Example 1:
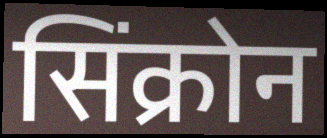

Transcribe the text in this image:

सिंक्रोन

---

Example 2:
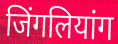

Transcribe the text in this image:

जिंगलियांग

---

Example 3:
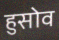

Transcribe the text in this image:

हुसोव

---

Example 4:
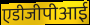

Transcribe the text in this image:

एडीजीपीआई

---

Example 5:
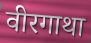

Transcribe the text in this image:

वीरगाथा